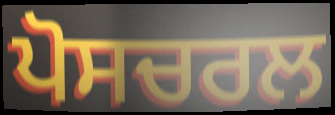
ਪੋਸਚਰਲ